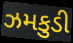
ઝમકુડી